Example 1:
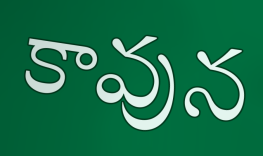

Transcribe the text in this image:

కావున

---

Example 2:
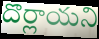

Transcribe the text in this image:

దొర్లాయని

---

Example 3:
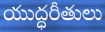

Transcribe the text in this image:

యుద్ధరీతులు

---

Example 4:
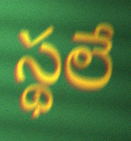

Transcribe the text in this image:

స్థలే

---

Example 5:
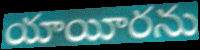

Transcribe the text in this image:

యాయీరను